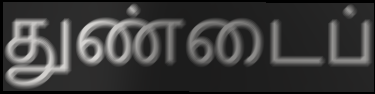
துண்டைப்